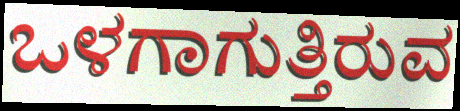
ಒಳಗಾಗುತ್ತಿರುವ